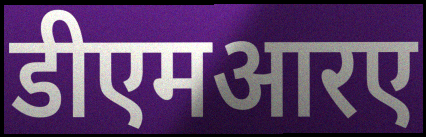
डीएमआरए